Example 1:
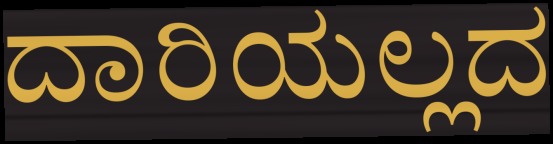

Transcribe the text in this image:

ದಾರಿಯಲ್ಲದ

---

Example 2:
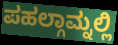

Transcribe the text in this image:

ಪಹಲ್ಗಾಮ್ನಲ್ಲಿ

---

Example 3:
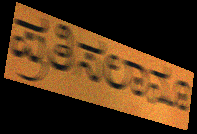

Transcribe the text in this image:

ಪ್ರತಿಸಲಾನೂ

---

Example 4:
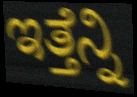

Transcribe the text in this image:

ಇತ್ತೆನ್ನಿ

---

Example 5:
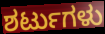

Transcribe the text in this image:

ಶರ್ಟುಗಳು